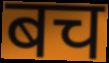
बच